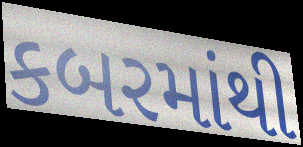
કબરમાંથી